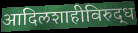
आदिलशाहीविरुद्ध